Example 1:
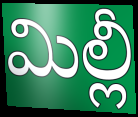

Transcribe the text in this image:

మిల్లీ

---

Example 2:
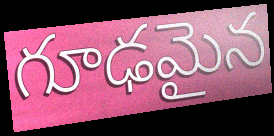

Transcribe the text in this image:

గూఢమైన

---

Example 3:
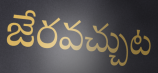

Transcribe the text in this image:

జేరవచ్చుట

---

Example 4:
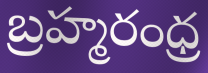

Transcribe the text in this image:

బ్రహ్మరంధ్ర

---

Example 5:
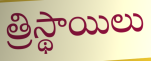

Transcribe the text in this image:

త్రిస్థాయిలు